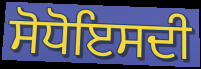
ਸੋਧੋਇਸਦੀ